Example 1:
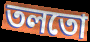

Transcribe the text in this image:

তলতো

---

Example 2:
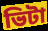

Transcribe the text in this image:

ভিটা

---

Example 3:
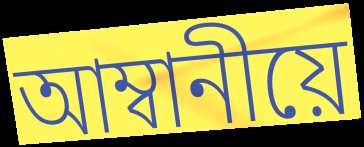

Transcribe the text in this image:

আম্বানীয়ে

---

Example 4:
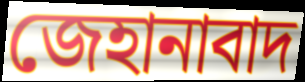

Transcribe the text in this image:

জেহানাবাদ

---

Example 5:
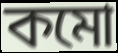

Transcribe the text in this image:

কমো